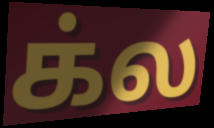
க்ல